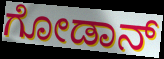
ಗೋಡಾನ್